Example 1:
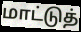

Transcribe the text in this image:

மாட்டுத்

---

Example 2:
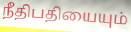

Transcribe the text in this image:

நீதிபதியையும்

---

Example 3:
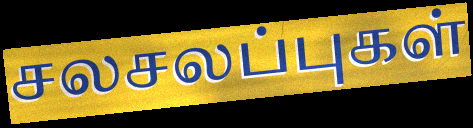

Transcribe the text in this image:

சலசலப்புகள்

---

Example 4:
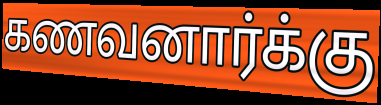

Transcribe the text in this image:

கணவனார்க்கு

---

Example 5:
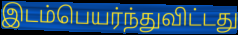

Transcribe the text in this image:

இடம்பெயர்ந்துவிட்டது